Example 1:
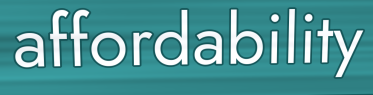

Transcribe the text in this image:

affordability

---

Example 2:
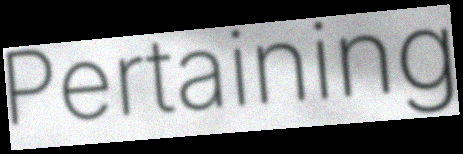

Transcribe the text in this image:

Pertaining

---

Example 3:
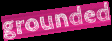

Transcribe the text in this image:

grounded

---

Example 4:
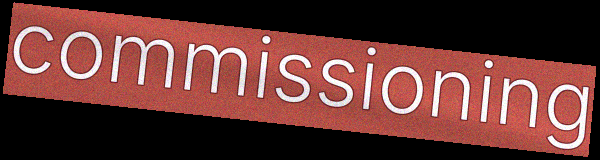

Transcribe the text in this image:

commissioning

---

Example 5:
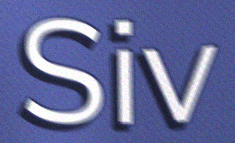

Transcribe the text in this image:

Siv